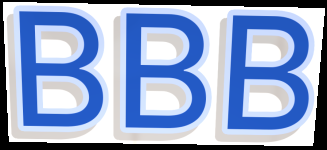
BBB